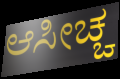
ಆಸೀಚ್ಚ